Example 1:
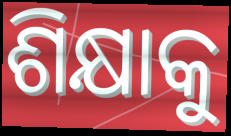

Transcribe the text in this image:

ଶିକ୍ଷାକୁ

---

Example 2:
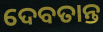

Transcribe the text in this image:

ଦେବତାନ୍ତ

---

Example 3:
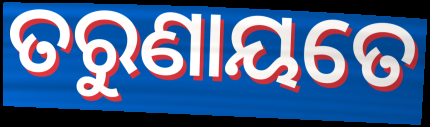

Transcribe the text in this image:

ତରୁଣାୟତେ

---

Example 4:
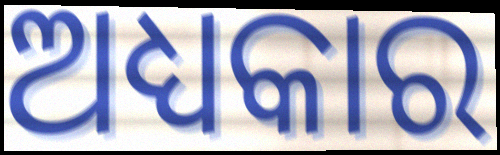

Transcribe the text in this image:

ଅଧ୍ଯକାର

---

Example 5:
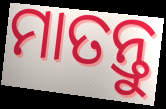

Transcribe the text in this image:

ମାତନ୍ତୁ